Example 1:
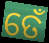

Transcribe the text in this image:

ତେଁ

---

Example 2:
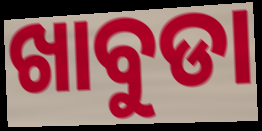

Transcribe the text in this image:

ଖାବୁଡା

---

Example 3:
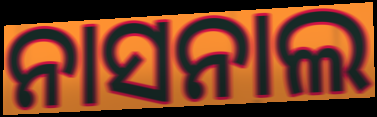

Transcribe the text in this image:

ନାସନାଲ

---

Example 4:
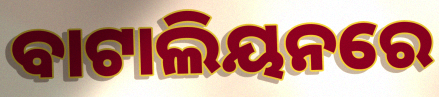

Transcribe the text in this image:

ବାଟାଲିୟନରେ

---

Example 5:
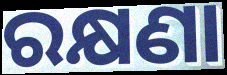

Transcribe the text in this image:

ରକ୍ଷଣା